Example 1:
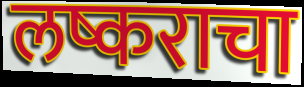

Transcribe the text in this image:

लष्कराचा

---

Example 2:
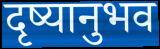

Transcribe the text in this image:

दृष्यानुभव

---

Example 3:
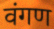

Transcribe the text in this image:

वंगण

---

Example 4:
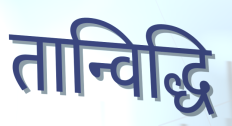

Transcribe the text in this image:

तान्विद्धि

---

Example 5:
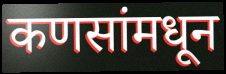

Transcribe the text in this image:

कणसांमधून